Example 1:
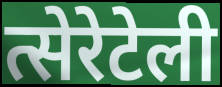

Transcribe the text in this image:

त्सेरेटेली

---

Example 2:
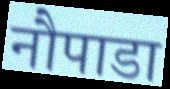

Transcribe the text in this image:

नौपाडा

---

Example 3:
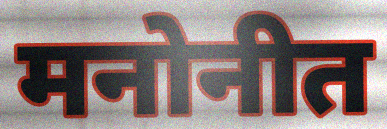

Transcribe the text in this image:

मनोनीत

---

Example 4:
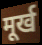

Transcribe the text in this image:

मूर्ख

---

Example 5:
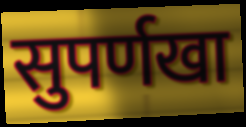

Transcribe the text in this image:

सुपर्णखा